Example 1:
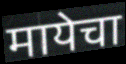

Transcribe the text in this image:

मायेचा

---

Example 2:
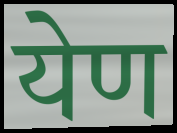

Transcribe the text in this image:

येण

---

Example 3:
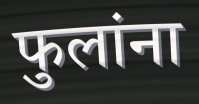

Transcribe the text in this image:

फुलांना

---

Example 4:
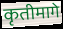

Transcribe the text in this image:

कृतीमागे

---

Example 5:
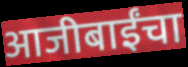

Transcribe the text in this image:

आजीबाईंचा